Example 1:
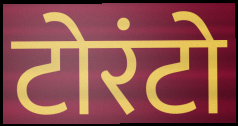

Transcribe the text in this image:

टोरंटो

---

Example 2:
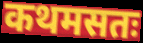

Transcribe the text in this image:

कथमसतः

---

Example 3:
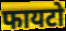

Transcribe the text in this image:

फायटो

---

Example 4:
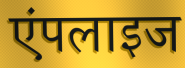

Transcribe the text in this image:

एंपलाइज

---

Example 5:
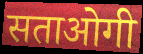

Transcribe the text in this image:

सताओगी